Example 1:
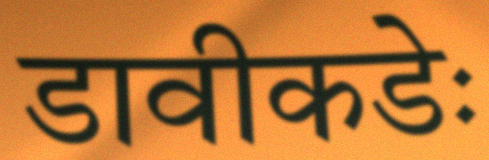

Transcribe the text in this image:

डावीकडेः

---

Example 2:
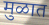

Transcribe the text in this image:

मुळात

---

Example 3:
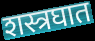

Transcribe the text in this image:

शस्त्रघात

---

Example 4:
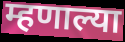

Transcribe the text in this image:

म्हणाल्या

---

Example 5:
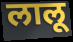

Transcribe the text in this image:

लालू